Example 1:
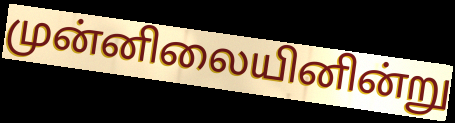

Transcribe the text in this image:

முன்னிலையினின்று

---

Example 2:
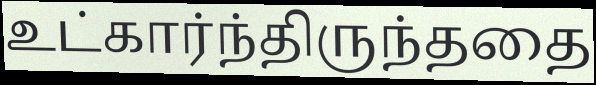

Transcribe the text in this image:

உட்கார்ந்திருந்ததை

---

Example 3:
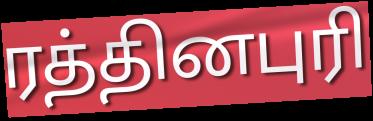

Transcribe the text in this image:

ரத்தினபுரி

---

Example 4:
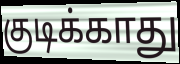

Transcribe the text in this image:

குடிக்காது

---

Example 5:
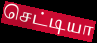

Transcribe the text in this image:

செட்டியா